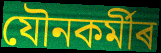
যৌনকৰ্মীৰ